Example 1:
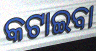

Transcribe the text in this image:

କଟାଇବା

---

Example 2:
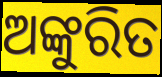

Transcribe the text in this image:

ଅଙ୍କୁରିତ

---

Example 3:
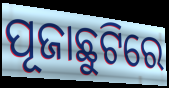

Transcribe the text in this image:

ପୂଜାଛୁଟିରେ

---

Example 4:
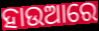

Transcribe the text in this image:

ହାଉଆରେ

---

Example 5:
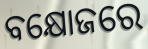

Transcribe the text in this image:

ବକ୍ଷୋଜରେ